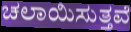
ಚಲಾಯಿಸುತ್ತವೆ